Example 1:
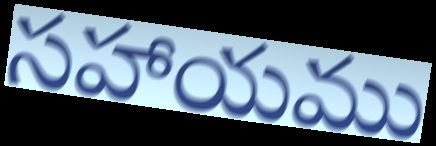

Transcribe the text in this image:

సహాయము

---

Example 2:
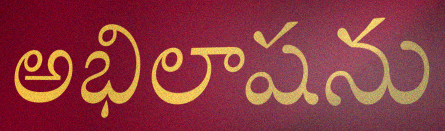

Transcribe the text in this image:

అభిలాషను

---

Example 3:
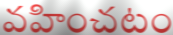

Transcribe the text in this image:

వహించటం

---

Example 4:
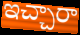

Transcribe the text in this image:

ఇచ్చారా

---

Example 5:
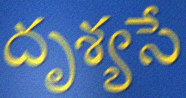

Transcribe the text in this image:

దృశ్యసే